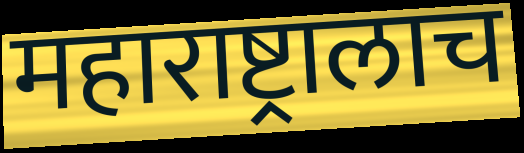
महाराष्ट्रालाच